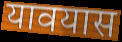
यावयास